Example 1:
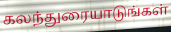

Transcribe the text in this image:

கலந்துரையாடுங்கள்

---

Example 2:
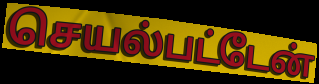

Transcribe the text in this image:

செயல்பட்டேன்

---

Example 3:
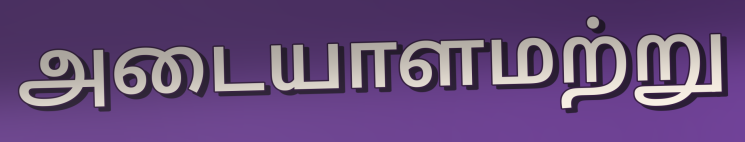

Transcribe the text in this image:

அடையாளமற்று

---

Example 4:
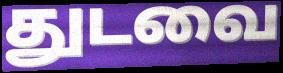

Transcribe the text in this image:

துடவை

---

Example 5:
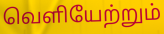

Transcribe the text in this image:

வெளியேற்றும்